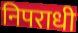
निपराधी